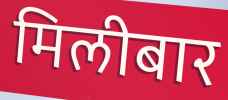
मिलीबार